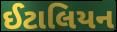
ઈટાલિયન